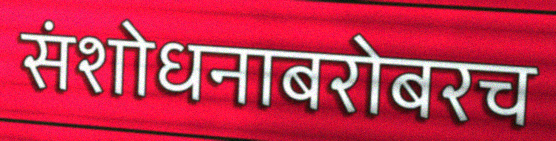
संशोधनाबरोबरच